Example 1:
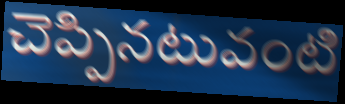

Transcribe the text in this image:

చెప్పినటువంటి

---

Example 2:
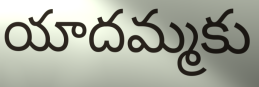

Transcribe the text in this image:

యాదమ్మకు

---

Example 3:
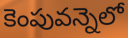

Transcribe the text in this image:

కెంపువన్నెలో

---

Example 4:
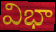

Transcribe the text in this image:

విభా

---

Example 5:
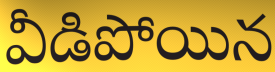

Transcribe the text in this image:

వీడిపోయిన